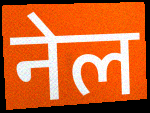
नेल